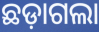
ଛଡ଼ାଗଲା